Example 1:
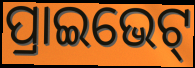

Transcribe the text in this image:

ପ୍ରାଇଭେଟ୍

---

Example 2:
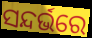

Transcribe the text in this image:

ସନ୍ଦର୍ଭରେ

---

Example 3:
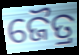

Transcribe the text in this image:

ଜୈତ୍ର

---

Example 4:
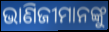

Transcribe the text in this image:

ଭାଣିଜୀମାନଙ୍କୁ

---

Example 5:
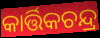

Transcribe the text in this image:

କାର୍ତ୍ତିକଚନ୍ଦ୍ର